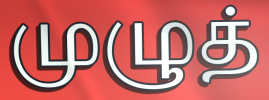
முழுத்